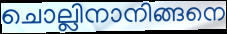
ചൊല്ലിനാനിങ്ങനെ